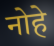
नोहे